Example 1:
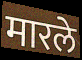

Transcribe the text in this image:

मारले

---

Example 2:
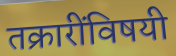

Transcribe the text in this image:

तक्रारींविषयी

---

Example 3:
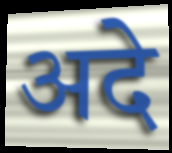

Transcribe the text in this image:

अदे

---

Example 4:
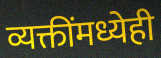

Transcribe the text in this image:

व्यक्तींमध्येही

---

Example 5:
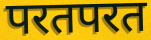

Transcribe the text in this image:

परतपरत